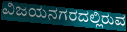
ವಿಜಯನಗರದಲ್ಲಿರುವ